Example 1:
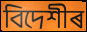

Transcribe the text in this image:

বিদেশীৰ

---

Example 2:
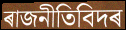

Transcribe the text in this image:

ৰাজনীতিবিদৰ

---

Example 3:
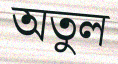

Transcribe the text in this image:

অতুল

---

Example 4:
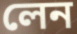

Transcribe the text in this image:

লেন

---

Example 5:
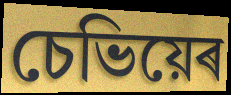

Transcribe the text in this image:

চেভিয়েৰ